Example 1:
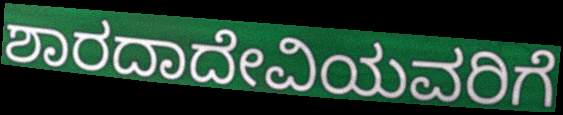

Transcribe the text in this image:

ಶಾರದಾದೇವಿಯವರಿಗೆ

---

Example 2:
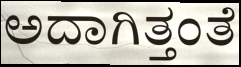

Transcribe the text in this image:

ಅದಾಗಿತ್ತಂತೆ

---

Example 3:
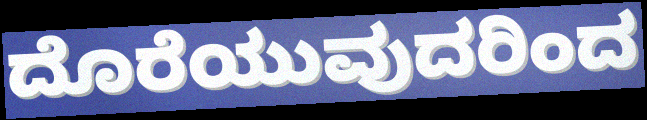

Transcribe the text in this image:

ದೊರೆಯುವುದರಿಂದ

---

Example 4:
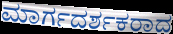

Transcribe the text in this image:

ಮಾರ್ಗದರ್ಶಕರಾದ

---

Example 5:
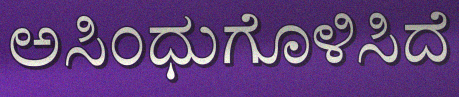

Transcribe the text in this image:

ಅಸಿಂಧುಗೊಳಿಸಿದೆ